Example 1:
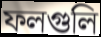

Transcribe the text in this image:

ফলগুলি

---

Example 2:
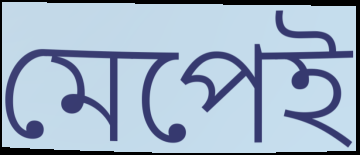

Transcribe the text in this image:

মেপেই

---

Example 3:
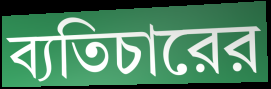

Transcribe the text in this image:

ব্যতিচারের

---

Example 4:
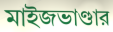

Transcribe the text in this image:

মাইজভাণ্ডার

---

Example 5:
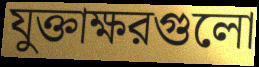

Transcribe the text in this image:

যুক্তাক্ষরগুলো